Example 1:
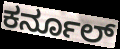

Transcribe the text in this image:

ಕರ್ನೂಲ್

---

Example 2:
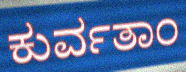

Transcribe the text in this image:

ಕುರ್ವತಾಂ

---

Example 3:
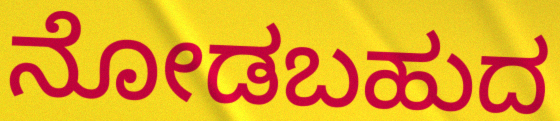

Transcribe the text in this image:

ನೋಡಬಹುದ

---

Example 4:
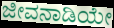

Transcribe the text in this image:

ಜೀವನಾಡಿಯೇ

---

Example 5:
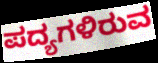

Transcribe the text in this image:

ಪದ್ಯಗಳಿರುವ